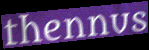
thennus